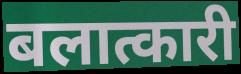
बलात्कारी